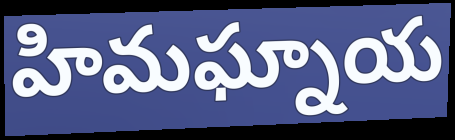
హిమఘ్నాయ